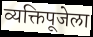
व्यक्तिपूजेला